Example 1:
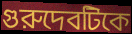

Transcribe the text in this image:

গুরুদেবটিকে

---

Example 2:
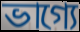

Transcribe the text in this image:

ভাগ্যে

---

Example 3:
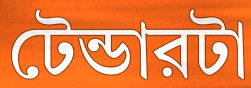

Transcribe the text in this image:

টেন্ডারটা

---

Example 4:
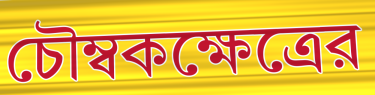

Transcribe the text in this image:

চৌম্বকক্ষেত্রের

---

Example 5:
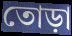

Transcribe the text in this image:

তোড়া